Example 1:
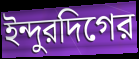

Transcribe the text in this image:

ইন্দুরদিগের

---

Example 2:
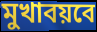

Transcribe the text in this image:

মুখাবয়বে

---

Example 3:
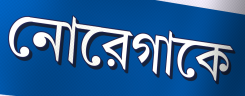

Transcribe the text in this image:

নোরেগাকে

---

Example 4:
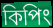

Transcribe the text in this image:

কিপিং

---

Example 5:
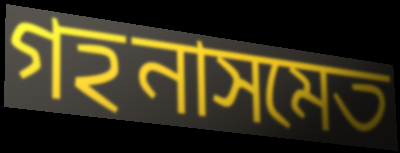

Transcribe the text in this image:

গহনাসমেত